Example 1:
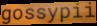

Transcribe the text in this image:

gossypii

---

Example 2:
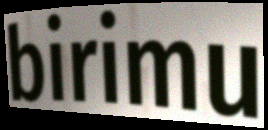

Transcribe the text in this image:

birimu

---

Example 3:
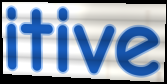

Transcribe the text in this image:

itive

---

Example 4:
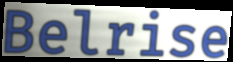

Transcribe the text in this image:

Belrise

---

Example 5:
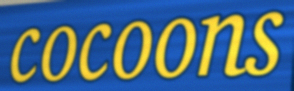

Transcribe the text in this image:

cocoons